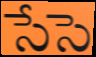
సేసె